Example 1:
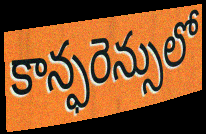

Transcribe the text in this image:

కాన్ఫరెన్సులో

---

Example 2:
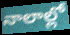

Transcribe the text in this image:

నాలాల్లో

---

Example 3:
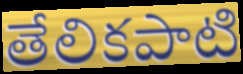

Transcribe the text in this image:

తేలికపాటి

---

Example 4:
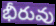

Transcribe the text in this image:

భీరువు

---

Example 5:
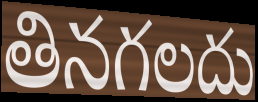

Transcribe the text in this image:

తినగలదు